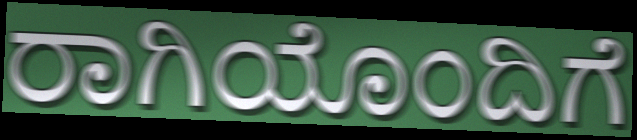
ರಾಗಿಯೊಂದಿಗೆ